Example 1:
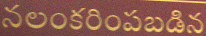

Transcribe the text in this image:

నలంకరింపబడిన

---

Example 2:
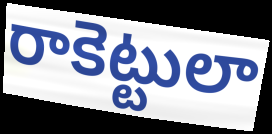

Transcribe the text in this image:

రాకెట్టులా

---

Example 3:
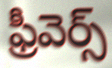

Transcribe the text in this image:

ఫ్రీవెర్స్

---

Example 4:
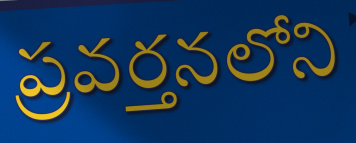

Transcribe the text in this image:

ప్రవర్తనలోని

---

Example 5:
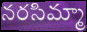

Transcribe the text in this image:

నరసిమ్మా